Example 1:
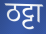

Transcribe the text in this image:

ठट्टा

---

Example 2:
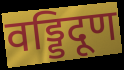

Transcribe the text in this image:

वड्डिदूण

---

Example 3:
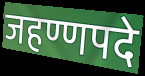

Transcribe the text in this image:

जहण्णपदे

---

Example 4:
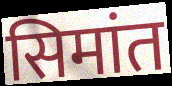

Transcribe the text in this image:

सिमांत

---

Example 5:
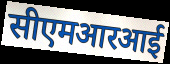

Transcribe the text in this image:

सीएमआरआई